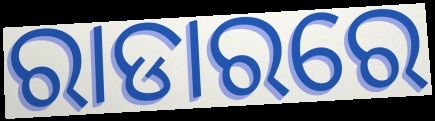
ରାଡାରରେ